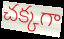
చక్కగా